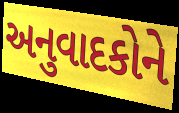
અનુવાદકોને